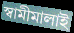
স্বামীমালাই